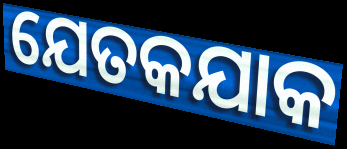
ଯେତକଯାକ